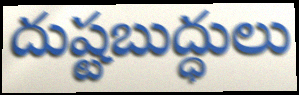
దుష్టబుద్ధులు